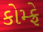
કોમ્ફ્રે